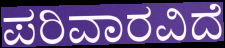
ಪರಿವಾರವಿದೆ